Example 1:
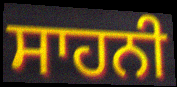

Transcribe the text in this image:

ਸਾਹਨੀ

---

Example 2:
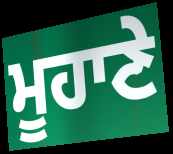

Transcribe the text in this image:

ਮੂਹਾਣੇ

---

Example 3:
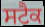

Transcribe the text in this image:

ਸਟੈਕ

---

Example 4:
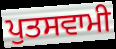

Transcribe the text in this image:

ਪੁਤਸਵਾਮੀ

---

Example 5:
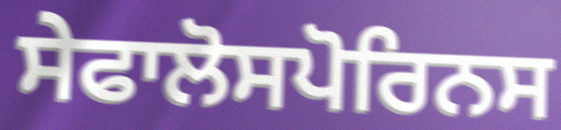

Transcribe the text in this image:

ਸੇਫਾਲੋਸਪੋਰਿਨਸ